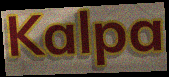
Kalpa